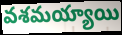
వశమయ్యాయి